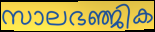
സാലഭഞ്ജിക